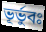
ভূর্ভুবঃ